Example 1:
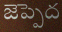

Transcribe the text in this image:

జెప్పెద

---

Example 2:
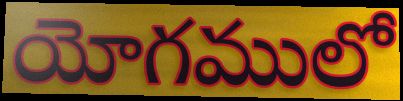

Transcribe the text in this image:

యోగములో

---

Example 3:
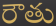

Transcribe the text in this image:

రౌతు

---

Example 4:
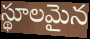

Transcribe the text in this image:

స్థూలమైన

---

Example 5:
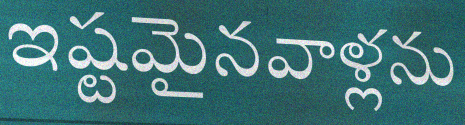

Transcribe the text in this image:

ఇష్టమైనవాళ్లను